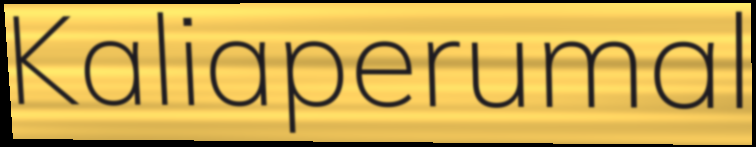
Kaliaperumal